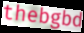
thebgbd